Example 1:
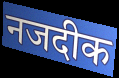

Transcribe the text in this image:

नजदीक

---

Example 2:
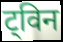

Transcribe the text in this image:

ट्विन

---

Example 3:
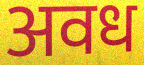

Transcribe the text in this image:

अवध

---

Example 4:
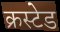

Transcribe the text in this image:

क्रस्टेड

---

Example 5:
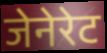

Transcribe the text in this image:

जेनेरेट